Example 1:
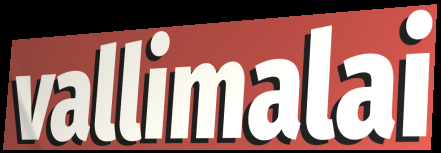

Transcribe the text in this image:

vallimalai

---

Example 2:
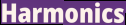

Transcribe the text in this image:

Harmonics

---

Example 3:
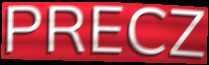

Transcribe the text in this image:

PRECZ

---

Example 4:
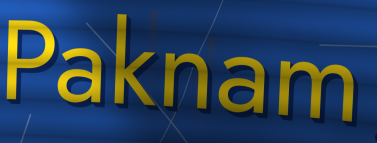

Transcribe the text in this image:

Paknam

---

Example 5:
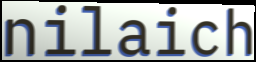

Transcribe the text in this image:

nilaich